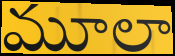
మూలా